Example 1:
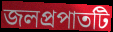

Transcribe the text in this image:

জলপ্রপাতটি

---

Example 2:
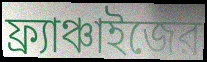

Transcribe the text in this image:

ফ্র্যাঞ্চাইজের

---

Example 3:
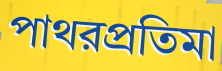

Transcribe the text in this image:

পাথরপ্রতিমা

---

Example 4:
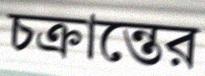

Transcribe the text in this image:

চক্রান্তের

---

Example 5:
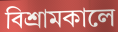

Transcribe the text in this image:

বিশ্রামকালে